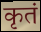
कृतं